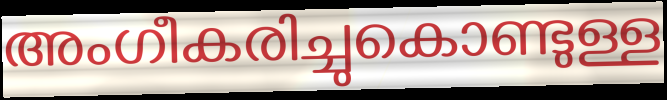
അംഗീകരിച്ചുകൊണ്ടുള്ള